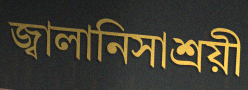
জ্বালানিসাশ্রয়ী